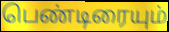
பெண்டிரையும்